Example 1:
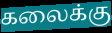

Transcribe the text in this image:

கலைக்கு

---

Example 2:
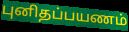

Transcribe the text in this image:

புனிதப்பயணம்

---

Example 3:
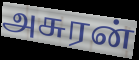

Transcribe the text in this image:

அசுரன்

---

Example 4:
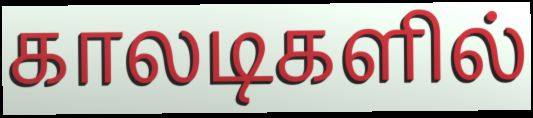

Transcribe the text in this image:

காலடிகளில்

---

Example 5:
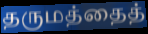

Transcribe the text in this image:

தருமத்தைத்